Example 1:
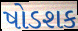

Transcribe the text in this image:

ષોડશક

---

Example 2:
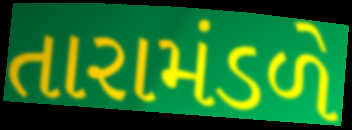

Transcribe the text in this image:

તારામંડળે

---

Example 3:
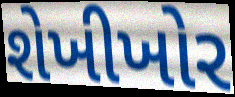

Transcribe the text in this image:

શેખીખોર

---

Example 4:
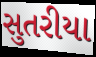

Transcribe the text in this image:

સુતરીયા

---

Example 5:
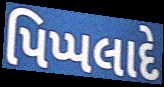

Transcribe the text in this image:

પિપ્પલાદે